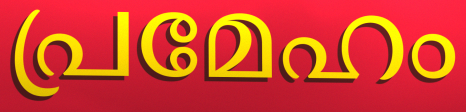
പ്രമേഹം